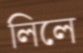
লিলে